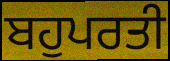
ਬਹੁਪਰਤੀ